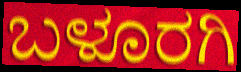
ಬಳೂರಗಿ